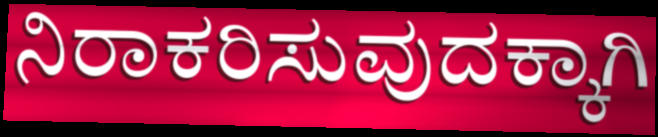
ನಿರಾಕರಿಸುವುದಕ್ಕಾಗಿ